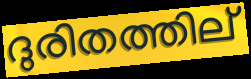
ദുരിതത്തില്